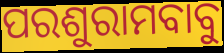
ପରଶୁରାମବାବୁ